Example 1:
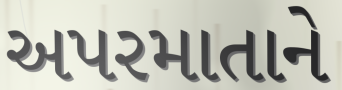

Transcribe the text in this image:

અપરમાતાને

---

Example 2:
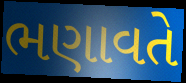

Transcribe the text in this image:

ભણાવતે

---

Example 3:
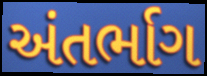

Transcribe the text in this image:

અંતર્ભાગ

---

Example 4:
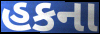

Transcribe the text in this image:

હકના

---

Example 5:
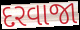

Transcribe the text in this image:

દરવાજા